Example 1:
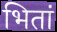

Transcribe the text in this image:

भितां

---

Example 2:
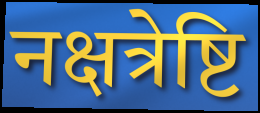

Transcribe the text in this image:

नक्षत्रेष्टि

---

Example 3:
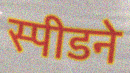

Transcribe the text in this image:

स्पीडने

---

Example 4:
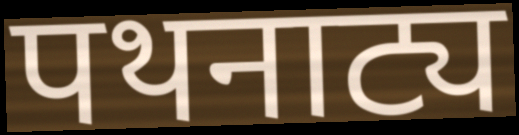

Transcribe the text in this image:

पथनाट्य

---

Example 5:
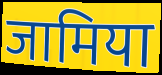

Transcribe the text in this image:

जामिया